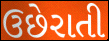
ઉછેરાતી